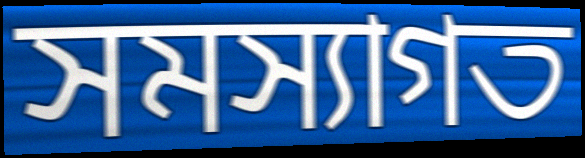
সমস্যাগত